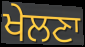
ਖੇਲਣਾ